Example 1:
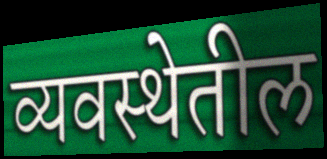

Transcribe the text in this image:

व्यवस्थेतील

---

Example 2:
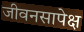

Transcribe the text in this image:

जीवनसापेक्ष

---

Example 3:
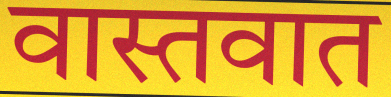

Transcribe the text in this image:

वास्तवात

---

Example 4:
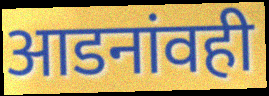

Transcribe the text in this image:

आडनांवही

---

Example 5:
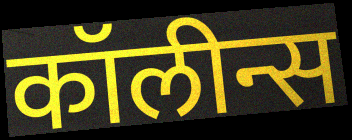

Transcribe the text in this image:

कॉलीन्स